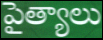
పైత్యాలు